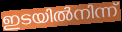
ഇടയിൽനിന്ന്